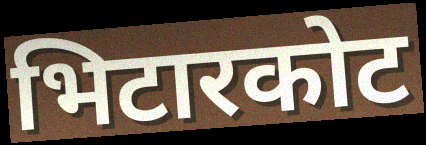
भिटारकोट